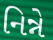
નિન્ને